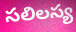
సలిలస్య